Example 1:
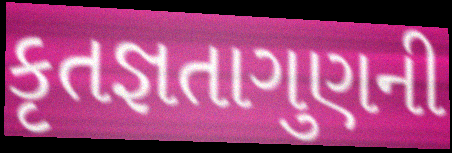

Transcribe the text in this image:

કૃતજ્ઞતાગુણની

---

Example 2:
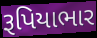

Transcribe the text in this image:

રૂપિયાભાર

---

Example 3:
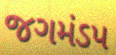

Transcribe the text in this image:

જગમંડપ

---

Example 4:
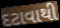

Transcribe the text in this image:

દટાવાથી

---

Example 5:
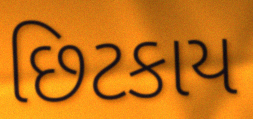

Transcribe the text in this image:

છિટકાય